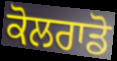
ਕੋਲਰਾਡੋ